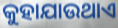
କୁହାଯାଉଥାଏ